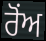
ਰੋਂਅ